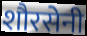
शौरसेनी